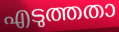
എടുത്തതാ